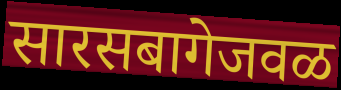
सारसबागेजवळ